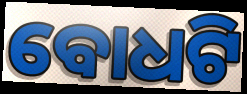
ବୋଧଟି